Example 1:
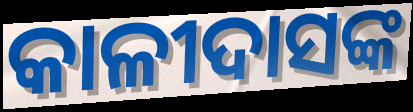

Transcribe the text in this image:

କାଳୀଦାସଙ୍କ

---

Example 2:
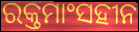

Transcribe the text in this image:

ରକ୍ତମାଂସହୀନ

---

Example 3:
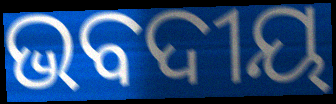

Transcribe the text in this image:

ଭବଦୀୟ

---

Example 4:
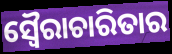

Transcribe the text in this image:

ସ୍ୱୈରାଚାରିତାର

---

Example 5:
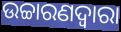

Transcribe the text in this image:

ଉଚ୍ଚାରଣଦ୍ଵାରା